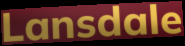
Lansdale